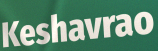
Keshavrao